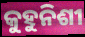
କୁହୁନିଶୀ